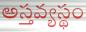
అస్తవ్యస్థం